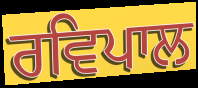
ਰਵਿਪਾਲ